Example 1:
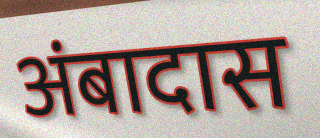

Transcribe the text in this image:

अंबादास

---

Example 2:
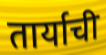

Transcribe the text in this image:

तार्याची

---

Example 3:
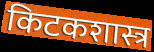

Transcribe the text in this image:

किटकशास्‍त्र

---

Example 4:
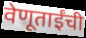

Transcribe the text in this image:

वेणूताईंची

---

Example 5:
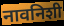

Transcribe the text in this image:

नावनिशी